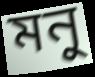
মনু